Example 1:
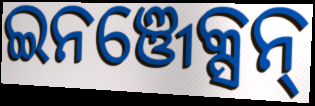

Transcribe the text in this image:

ଇନଞ୍ଜେକ୍ସନ୍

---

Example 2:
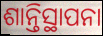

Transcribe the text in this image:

ଶାନ୍ତିସ୍ଥାପନା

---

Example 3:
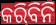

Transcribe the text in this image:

କରିବିନି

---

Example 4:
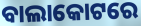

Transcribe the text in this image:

ବାଲାକୋଟରେ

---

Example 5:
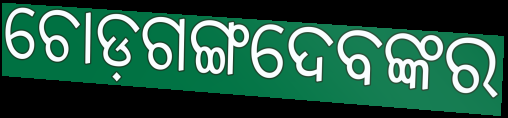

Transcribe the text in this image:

ଚୋଡ଼ଗଙ୍ଗଦେବଙ୍କର